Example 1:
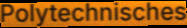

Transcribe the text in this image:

Polytechnisches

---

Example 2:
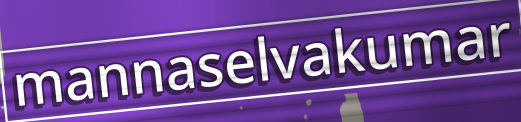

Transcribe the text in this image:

mannaselvakumar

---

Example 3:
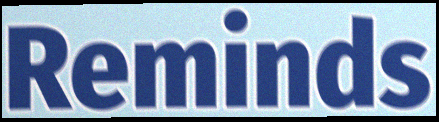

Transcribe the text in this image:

Reminds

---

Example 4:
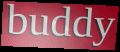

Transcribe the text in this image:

buddy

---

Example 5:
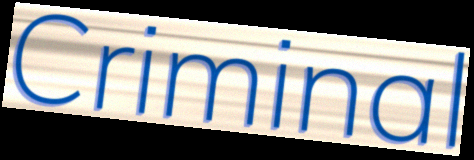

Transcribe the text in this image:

Criminal